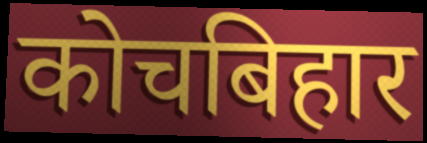
कोचबिहार